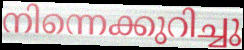
നിന്നെക്കുറിച്ചു